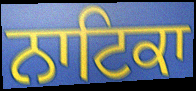
ਨਾਟਿਕਾ